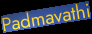
Padmavathi